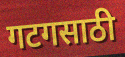
गटगसाठी